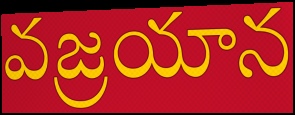
వజ్రయాన